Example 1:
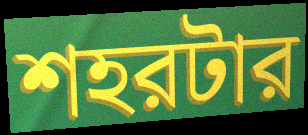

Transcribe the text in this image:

শহরটার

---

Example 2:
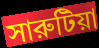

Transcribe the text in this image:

সারুটিয়া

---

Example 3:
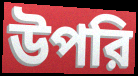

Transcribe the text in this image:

উপরি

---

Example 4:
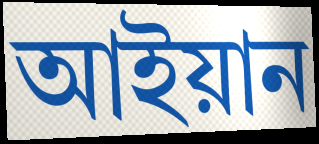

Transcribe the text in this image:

আইয়ান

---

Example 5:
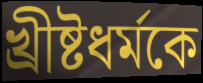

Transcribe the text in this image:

খ্রীষ্টধর্মকে